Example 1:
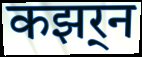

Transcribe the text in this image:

कझर्न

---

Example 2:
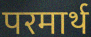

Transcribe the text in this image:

परमार्थ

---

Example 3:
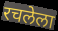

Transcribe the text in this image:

रचलेला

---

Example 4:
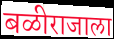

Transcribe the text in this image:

बळीराजाला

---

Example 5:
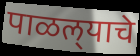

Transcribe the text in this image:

पाळल्याचे